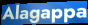
Alagappa